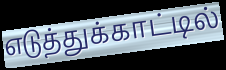
எடுத்துக்காட்டில்